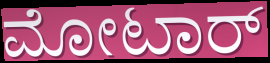
ಮೋಟಾರ್